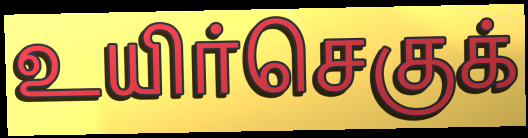
உயிர்செகுக்